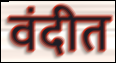
वंदीत